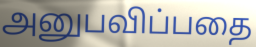
அனுபவிப்பதை